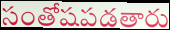
సంతోషపడతారు